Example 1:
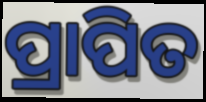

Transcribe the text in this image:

ପ୍ରାପିତ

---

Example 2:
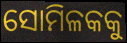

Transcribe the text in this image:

ସୋମିଳକକୁ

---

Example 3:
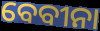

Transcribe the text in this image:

ବେବୀନା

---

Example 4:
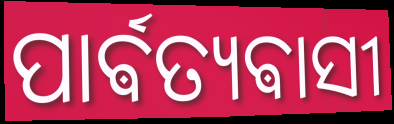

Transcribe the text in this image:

ପାର୍ଵତ୍ୟଵାସୀ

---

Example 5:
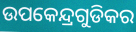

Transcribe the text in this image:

ଉପକେନ୍ଦ୍ରଗୁଡିକର